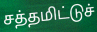
சத்தமிட்டுச்